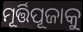
ମୂର୍ତ୍ତିପୂଜାକୁ